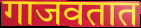
गाजवतात